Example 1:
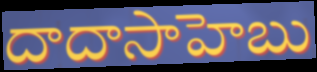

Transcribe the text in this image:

దాదాసాహెబు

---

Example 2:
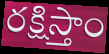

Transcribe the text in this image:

రక్షిస్తాం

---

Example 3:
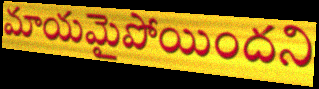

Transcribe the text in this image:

మాయమైపోయిందని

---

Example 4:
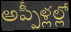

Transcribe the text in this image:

అప్పీళ్లల్లో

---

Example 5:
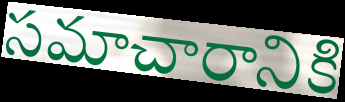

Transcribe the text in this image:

సమాచారానికి